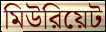
মিউরিয়েট